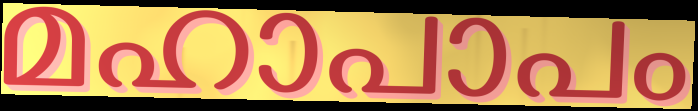
മഹാപാപം